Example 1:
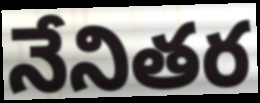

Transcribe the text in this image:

నేనితర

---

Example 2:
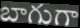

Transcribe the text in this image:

బాగుగా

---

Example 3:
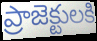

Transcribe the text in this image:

ప్రాజెక్టులకి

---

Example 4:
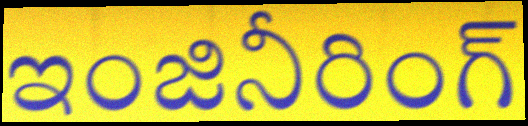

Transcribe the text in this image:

ఇంజినీరింగ్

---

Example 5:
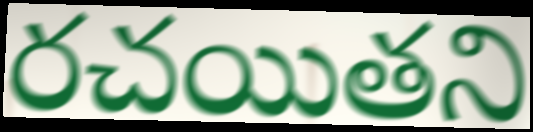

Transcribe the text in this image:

రచయితని